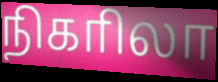
நிகரிலா